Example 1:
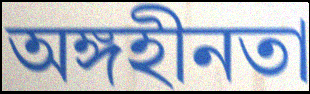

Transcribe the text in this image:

অঙ্গহীনতা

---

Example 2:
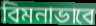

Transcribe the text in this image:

বিমনাভাবে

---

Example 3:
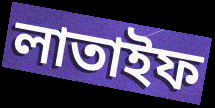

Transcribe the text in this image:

লাতাইফ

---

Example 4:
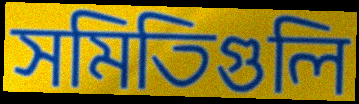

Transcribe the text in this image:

সমিতিগুলি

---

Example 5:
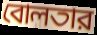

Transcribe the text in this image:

বোলতার